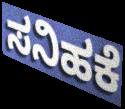
ಸನಿಹಕೆ